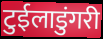
टुईलाडुंगरी